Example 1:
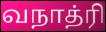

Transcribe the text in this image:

வநாத்ரி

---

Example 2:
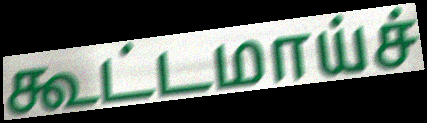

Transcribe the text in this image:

கூட்டமாய்ச்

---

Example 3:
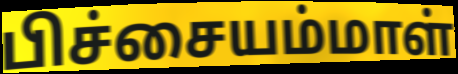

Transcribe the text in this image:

பிச்சையம்மாள்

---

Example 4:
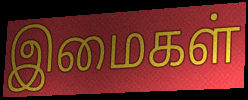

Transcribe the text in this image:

இமைகள்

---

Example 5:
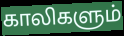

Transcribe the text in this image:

காலிகளும்